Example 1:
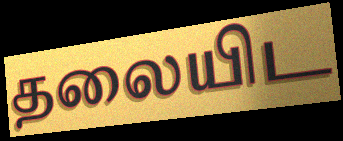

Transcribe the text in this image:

தலையிட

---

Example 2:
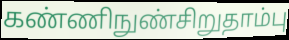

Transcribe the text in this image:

கண்ணிநுண்சிறுதாம்பு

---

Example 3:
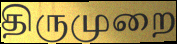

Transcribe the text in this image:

திருமுறை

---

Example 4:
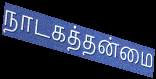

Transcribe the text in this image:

நாடகத்தன்மை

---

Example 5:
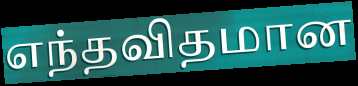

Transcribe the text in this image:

எந்தவிதமான